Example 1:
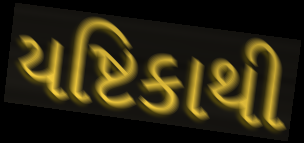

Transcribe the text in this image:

યષ્ટિકાથી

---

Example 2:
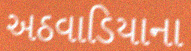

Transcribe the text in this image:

અઠવાડિયાના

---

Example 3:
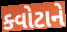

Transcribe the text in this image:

ક્વોટાને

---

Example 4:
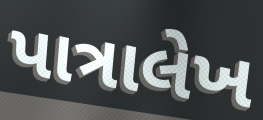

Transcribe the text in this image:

પાત્રાલેખ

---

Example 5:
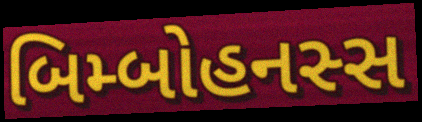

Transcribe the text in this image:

બિમ્બોહનસ્સ